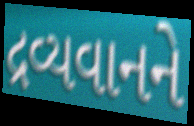
દ્રવ્યવાનને